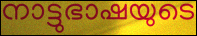
നാട്ടുഭാഷയുടെ